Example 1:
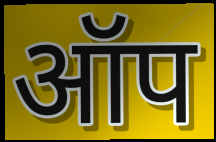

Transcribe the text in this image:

ऑप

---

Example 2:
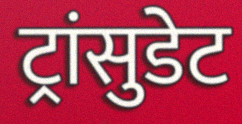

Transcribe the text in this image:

ट्रांसुडेट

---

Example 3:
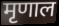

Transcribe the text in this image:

मृणाल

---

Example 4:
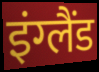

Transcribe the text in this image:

इंग्‍लैंड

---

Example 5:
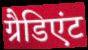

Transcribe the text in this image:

ग्रैडिएंट